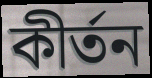
কীৰ্তন